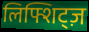
लिफ्शिट्ज़